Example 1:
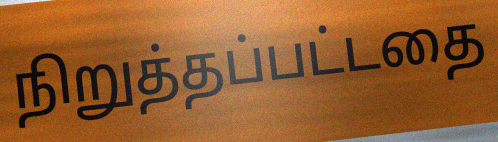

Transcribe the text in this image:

நிறுத்தப்பட்டதை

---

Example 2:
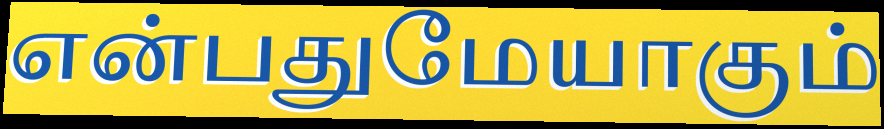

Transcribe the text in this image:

என்பதுமேயாகும்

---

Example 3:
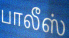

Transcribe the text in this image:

பாலீஸ்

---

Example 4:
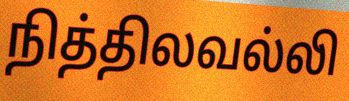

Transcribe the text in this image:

நித்திலவல்லி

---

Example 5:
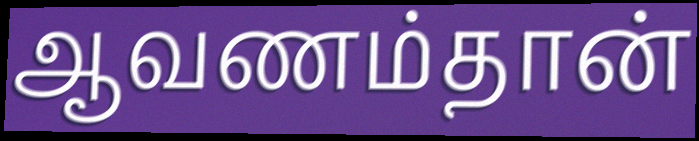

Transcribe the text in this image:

ஆவணம்தான்